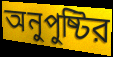
অনুপুষ্টির